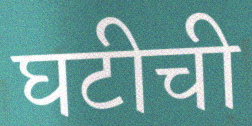
घटीची